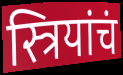
स्त्रियांचं